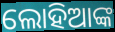
ଲୋହିଆଙ୍କ